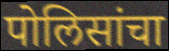
पोलिसांचा